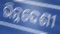
ଭିନ୍ନଦେଶୀ